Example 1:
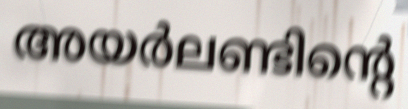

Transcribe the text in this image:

അയർലണ്ടിന്റെ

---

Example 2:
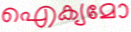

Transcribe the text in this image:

ഐക്യമോ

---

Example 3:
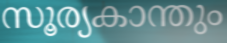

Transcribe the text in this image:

സൂര്യകാന്തും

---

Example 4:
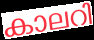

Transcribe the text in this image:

കാലറി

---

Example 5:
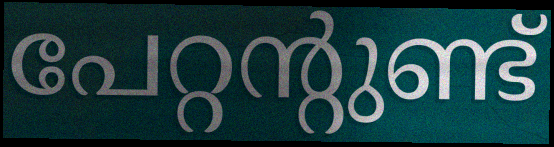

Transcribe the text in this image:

പേറ്റന്റുണ്ട്